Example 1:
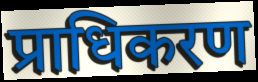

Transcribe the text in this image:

प्राधिकरण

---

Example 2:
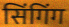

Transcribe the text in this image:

सिंगिंग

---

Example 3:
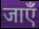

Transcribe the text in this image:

जाएँ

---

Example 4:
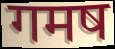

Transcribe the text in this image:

गमष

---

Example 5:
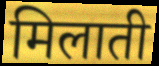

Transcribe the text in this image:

मिलाती